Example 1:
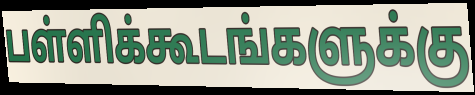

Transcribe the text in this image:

பள்ளிக்கூடங்களுக்கு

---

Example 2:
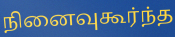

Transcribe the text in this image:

நினைவுகூர்ந்த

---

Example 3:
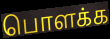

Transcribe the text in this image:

பொளக்க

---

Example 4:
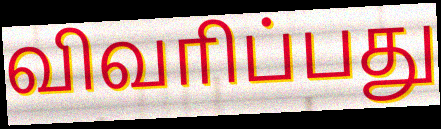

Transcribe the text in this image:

விவரிப்பது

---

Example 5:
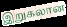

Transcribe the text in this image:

இறுகலான